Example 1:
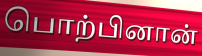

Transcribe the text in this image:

பொற்பினான்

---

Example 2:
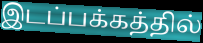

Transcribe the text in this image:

இடப்பக்கத்தில்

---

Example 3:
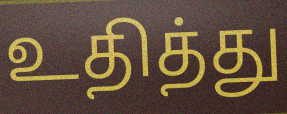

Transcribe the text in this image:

உதித்து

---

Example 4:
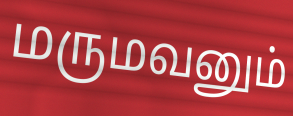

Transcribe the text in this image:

மருமவனும்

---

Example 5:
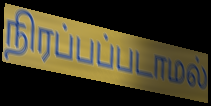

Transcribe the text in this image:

நிரப்பப்படாமல்